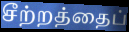
சீற்றத்தைப்